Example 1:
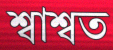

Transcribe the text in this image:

শ্বাশ্বত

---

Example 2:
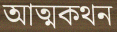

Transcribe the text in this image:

আত্মকথন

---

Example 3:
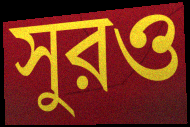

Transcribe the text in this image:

সুরও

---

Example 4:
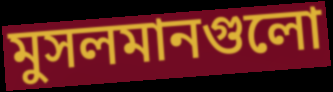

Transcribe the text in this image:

মুসলমানগুলো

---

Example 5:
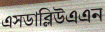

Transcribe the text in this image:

এসডাব্লিউএএন